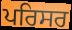
ਪਰਿਸਰ